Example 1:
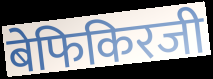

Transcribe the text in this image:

बेफिकिरजी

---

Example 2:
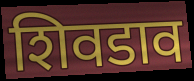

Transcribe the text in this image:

शिवडाव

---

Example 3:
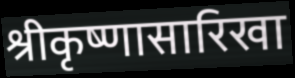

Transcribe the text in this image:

श्रीकृष्णासारिखा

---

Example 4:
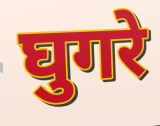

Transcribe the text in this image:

घुगरे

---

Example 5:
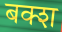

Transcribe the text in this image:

बक्श